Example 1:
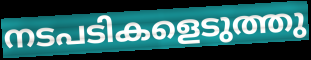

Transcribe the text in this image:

നടപടികളെടുത്തു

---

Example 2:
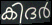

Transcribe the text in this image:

കിദർ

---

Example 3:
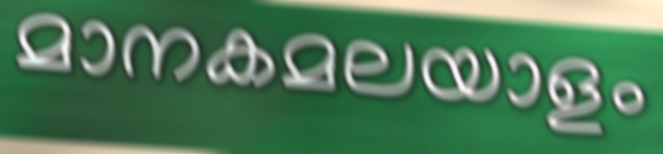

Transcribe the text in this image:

മാനകമലയാളം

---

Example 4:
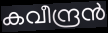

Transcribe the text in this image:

കവീന്ദ്രൻ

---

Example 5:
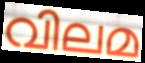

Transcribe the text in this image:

വിലമ